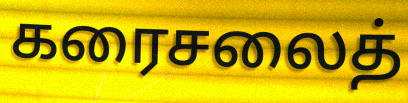
கரைசலைத்